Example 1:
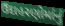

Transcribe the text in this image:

ઉદાહરણોમાંનું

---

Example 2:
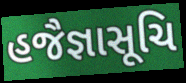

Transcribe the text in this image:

હજૈજ્ઞાસૂચિ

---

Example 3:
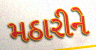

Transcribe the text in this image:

મઠારીને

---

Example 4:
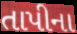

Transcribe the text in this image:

તાપીના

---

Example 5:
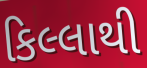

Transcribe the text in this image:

કિલ્લાથી